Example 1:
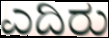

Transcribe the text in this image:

ಎದಿರು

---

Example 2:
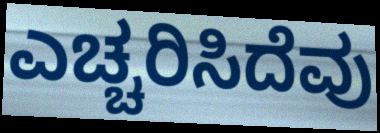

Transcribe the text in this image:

ಎಚ್ಚರಿಸಿದೆವು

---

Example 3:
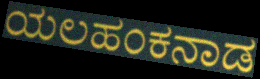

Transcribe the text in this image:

ಯಲಹಂಕನಾಡ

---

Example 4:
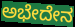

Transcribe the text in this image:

ಅಭೇದೇನ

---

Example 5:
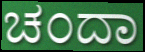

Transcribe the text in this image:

ಚಂದಾ